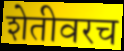
शेतीवरच